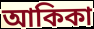
আকিকা